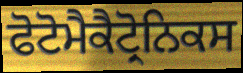
ਫੋਟੋਮੈਕੈਟ੍ਰੋਨਿਕਸ